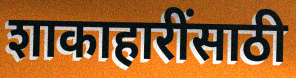
शाकाहारींसाठी